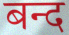
बन्द